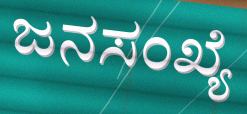
ಜನಸಂಖ್ಯೆ